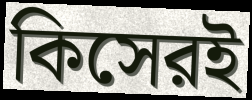
কিসেরই